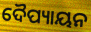
ଦୈପ୍ୟାୟନ